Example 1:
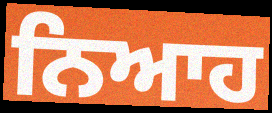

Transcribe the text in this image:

ਨਿਆਹ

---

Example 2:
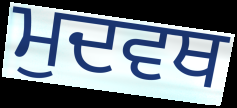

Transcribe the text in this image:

ਮੁਦਵਥ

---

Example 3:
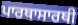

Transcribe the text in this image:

ਪਾਰਥਾਸਾਰਥੀ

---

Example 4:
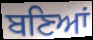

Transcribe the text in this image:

ਬਣਿਆਂ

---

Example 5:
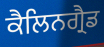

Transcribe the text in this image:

ਕੈਲਿਨਗ੍ਰੈਡ